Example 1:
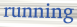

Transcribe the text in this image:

running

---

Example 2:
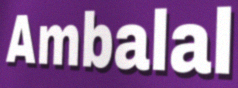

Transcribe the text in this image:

Ambalal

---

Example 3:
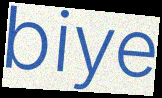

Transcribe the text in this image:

biye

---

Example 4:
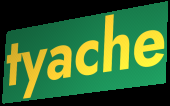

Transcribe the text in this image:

tyache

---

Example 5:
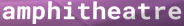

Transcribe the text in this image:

amphitheatre